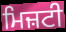
ਮਿਜ਼ਟੀ